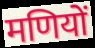
मणियों